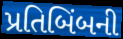
પ્રતિબિંબની